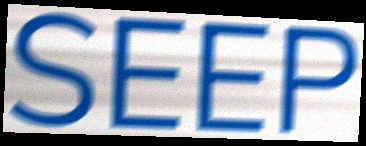
SEEP